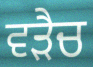
ਵੜੈਚ